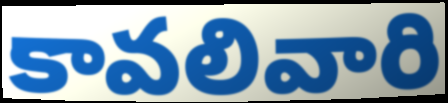
కావలివారి